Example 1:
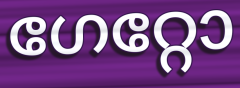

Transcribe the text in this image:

ഗേറ്റോ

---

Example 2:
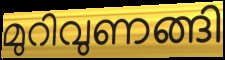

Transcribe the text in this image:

മുറിവുണങ്ങി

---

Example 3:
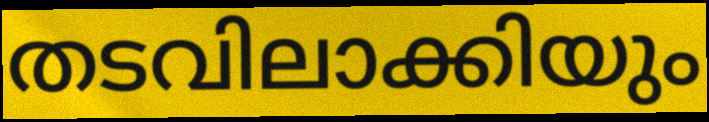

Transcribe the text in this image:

തടവിലാക്കിയും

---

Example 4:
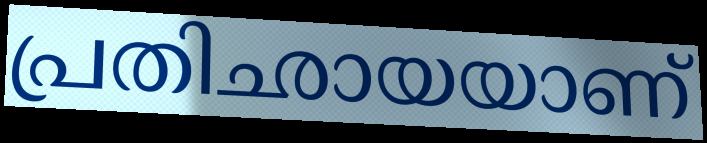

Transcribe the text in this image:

പ്രതിഛായയാണ്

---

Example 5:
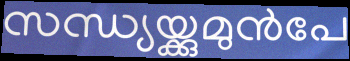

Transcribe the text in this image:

സന്ധ്യയ്ക്കുമുൻപേ